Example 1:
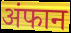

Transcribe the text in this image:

अंफान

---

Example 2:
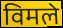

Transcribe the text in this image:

विमले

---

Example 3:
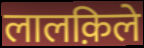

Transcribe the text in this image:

लालक़िले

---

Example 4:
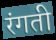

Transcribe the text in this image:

रंगती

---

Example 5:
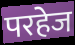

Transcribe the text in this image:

परहेज